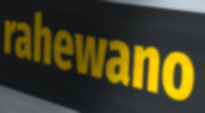
rahewano